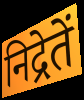
निद्रेतें